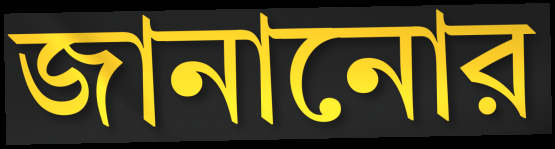
জানানোর